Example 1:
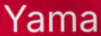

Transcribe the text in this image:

Yama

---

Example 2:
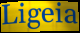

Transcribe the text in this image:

Ligeia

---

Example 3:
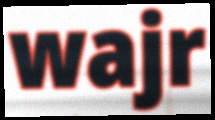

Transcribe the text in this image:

wajr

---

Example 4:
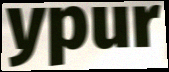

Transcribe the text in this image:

ypur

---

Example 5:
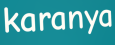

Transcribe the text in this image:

karanya